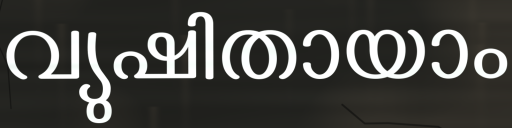
വ്യുഷിതായാം